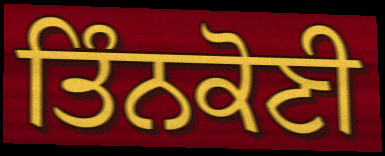
ਤਿੰਨਕੋਣੀ